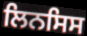
ਲਿਨਸਿਸ